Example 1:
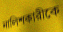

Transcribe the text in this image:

নালিশকারীকে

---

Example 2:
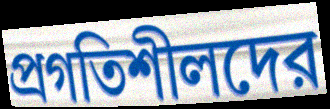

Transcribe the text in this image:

প্রগতিশীলদের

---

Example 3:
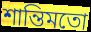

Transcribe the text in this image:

শান্তিমতো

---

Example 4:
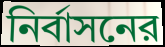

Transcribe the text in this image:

নির্বাসনের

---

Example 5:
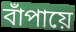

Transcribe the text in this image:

বাঁপায়ে